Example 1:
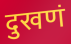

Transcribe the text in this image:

दुखणं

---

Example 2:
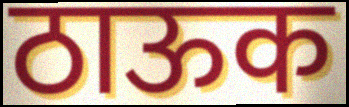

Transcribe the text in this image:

ठाऊक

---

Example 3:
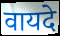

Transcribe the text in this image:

वायदे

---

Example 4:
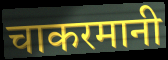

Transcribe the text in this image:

चाकरमानी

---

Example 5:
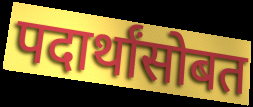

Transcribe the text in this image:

पदार्थांसोबत